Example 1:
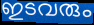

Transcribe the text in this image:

ഇടവരും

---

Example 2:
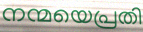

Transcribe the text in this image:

നന്മയെപ്രതി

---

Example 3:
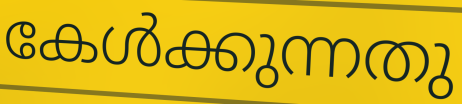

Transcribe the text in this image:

കേൾക്കുന്നതു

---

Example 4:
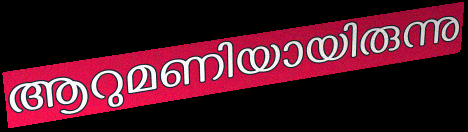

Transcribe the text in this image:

ആറുമണിയായിരുന്നു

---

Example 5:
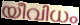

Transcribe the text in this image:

യീവിധം